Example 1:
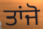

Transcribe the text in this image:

ਤਾਂਜੋ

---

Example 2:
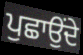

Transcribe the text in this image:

ਪੁਛਾਉਂਦੇ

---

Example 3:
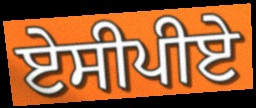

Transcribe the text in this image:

ਏਸੀਪੀਏ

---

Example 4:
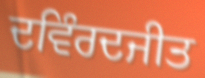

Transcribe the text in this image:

ਦਵਿੰਰਦਜੀਤ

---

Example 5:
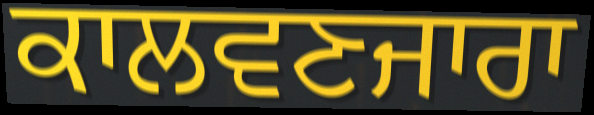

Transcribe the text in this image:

ਕਾਲਵਣਜਾਰਾ